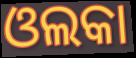
ଓଲକା